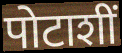
पोटाशीं